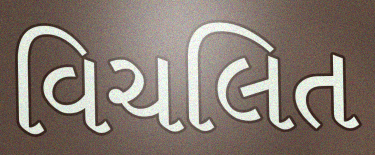
વિચલિત